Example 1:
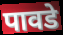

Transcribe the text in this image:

पावडे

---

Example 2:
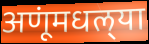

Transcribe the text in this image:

अणूंमधल्या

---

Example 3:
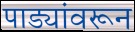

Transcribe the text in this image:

पाड्यांवरून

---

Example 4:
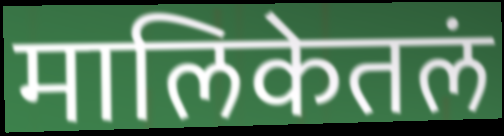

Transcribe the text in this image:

मालिकेतलं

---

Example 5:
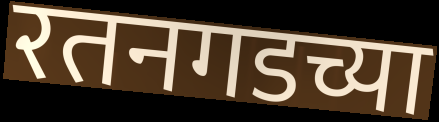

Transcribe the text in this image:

रतनगडच्या